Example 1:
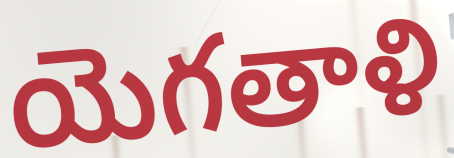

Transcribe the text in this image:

యెగతాళి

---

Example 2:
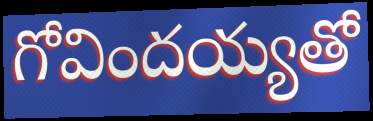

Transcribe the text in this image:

గోవిందయ్యతో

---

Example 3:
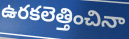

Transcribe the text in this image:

ఉరకలెత్తించినా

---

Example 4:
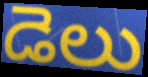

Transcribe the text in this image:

డెలు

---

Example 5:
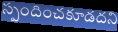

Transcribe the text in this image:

స్పందించకూడదని